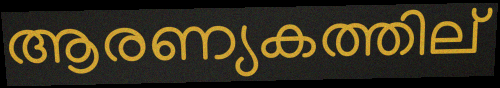
ആരണ്യകത്തില്